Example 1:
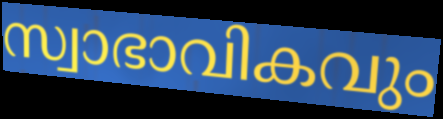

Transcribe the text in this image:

സ്വാഭാവികവും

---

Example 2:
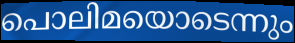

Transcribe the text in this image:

പൊലിമയൊടെന്നും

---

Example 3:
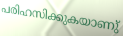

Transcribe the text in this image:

പരിഹസിക്കുകയാണു്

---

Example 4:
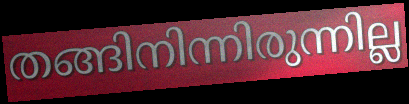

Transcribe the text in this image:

തങ്ങിനിന്നിരുന്നില്ല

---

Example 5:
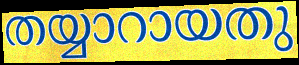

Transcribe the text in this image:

തയ്യാറായതു